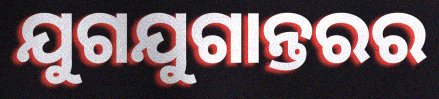
ଯୁଗଯୁଗାନ୍ତରର